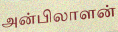
அன்பிலாளன்